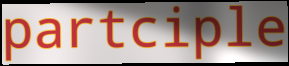
partciple